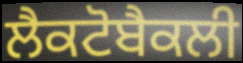
ਲੈਕਟੋਬੈਕਲੀ